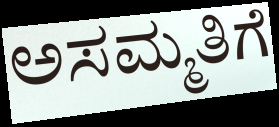
ಅಸಮ್ಮತಿಗೆ